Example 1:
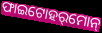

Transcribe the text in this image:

ଫାଇଟୋହର୍‌ମୋନ୍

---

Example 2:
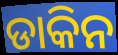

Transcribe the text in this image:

ଡାକିନ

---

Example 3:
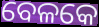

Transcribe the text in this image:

ବେଳକେ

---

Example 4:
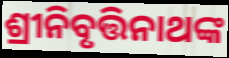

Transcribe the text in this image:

ଶ୍ରୀନିବୃତ୍ତିନାଥଙ୍କ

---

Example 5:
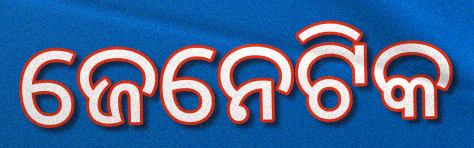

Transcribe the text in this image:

ଜେନେଟିକ